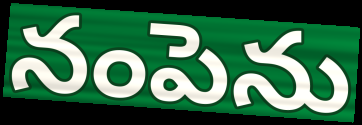
నంపెను